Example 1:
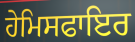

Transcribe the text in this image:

ਹੇਮਿਸਫਾਇਰ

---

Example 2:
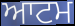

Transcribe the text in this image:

ਆਟਮ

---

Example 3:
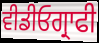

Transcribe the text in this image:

ਵੀਡੀਓਗ੍ਰਾਫੀ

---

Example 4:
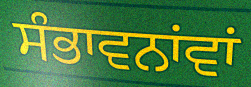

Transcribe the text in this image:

ਸੰਭਾਵਨਾਂਵਾਂ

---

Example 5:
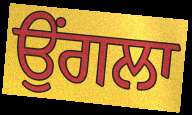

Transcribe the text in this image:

ਉਂਗਲਾ